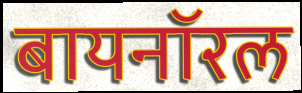
बायनॉरल